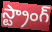
స్ట్రాంగ్